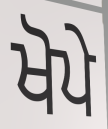
ਖੋਪੇ